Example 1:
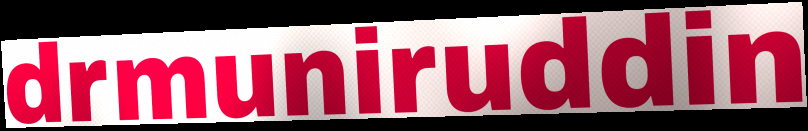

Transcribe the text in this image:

drmuniruddin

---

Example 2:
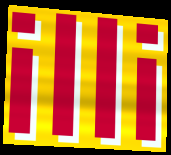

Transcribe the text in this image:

illi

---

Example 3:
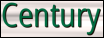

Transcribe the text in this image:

Century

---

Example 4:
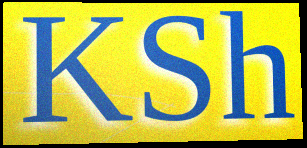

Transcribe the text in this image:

KSh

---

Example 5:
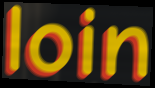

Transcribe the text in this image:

loin